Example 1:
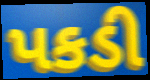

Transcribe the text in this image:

પકડી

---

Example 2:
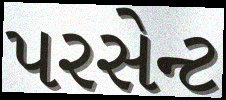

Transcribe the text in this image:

પરસેન્ટ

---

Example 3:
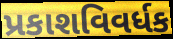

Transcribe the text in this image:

પ્રકાશવિવર્ધક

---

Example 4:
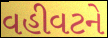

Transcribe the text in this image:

વહીવટને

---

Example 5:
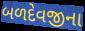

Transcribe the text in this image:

બળદેવજીના